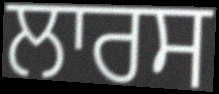
ਲਾਰਸ